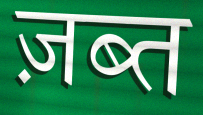
ज़ब्त